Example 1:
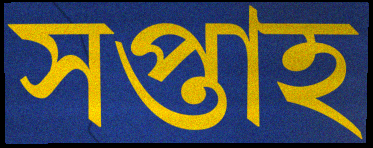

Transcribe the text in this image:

সপ্তাহ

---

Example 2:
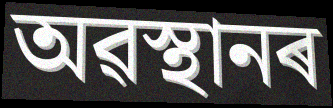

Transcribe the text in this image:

অৱস্থানৰ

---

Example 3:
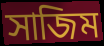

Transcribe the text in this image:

সাজিম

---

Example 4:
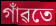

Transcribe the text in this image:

গাঁৱতে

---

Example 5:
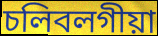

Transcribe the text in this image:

চলিবলগীয়া